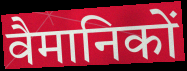
वैमानिकों